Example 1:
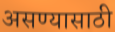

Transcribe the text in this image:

असण्यासाठी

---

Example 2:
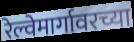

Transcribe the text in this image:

रेल्वेमार्गावरच्या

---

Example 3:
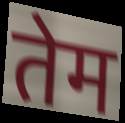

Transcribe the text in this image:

तेम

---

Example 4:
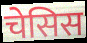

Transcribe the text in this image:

चेसिस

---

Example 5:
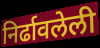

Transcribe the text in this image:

निर्ढावलेली